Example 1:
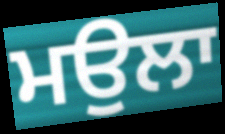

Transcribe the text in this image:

ਮਉਲਾ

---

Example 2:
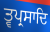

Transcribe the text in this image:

ਤ੍ਵਪ੍ਰਸਾਦਿ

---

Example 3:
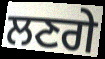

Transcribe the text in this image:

ਲਣਗੇ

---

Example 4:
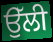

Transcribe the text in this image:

ਉੱਲੀ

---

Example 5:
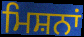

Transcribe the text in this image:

ਮਿਸ਼ਨਾਂ